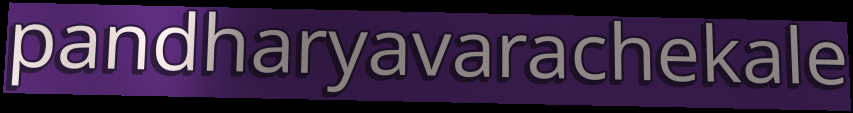
pandharyavarachekale